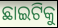
ଛାଇଟିକୁ